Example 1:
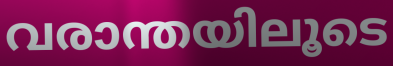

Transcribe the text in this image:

വരാന്തയിലൂടെ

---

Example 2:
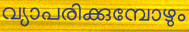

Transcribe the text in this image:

വ്യാപരിക്കുമ്പോഴും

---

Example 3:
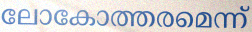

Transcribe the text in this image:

ലോകോത്തരമെന്ന്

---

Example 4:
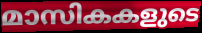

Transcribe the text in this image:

മാസികകളുടെ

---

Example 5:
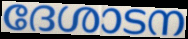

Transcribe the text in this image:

ദേശാടന